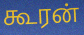
கூரன்